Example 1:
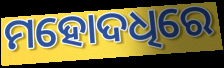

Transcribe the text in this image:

ମହୋଦଧିରେ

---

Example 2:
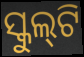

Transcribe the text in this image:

ସ୍କୁଲ୍‌ଟି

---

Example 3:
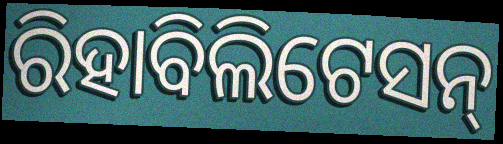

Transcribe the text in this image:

ରିହାବିଲିଟେସନ୍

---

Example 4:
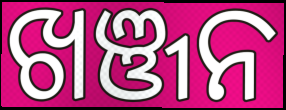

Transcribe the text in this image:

ଖଞ୍ଜନ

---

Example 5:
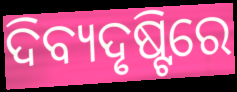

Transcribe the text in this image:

ଦିବ୍ୟଦୃଷ୍ଟିରେ